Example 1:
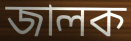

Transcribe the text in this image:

জালক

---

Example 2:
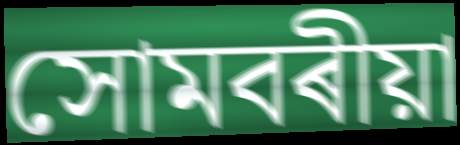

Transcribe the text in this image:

সোমবৰীয়া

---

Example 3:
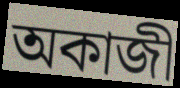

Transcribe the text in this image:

অকাজী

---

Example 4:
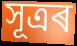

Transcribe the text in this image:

সূত্ৰৰ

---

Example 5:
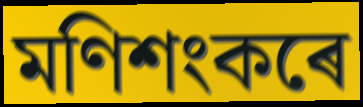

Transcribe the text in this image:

মণিশংকৰে